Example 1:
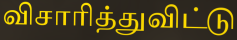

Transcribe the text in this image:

விசாரித்துவிட்டு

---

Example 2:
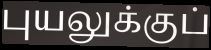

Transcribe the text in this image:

புயலுக்குப்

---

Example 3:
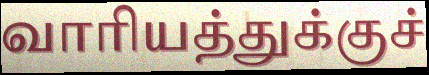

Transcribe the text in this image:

வாரியத்துக்குச்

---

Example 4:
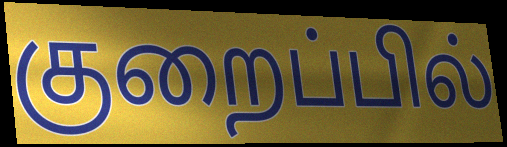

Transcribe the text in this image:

குறைப்பில்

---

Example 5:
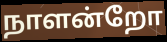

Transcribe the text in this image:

நாளன்றோ